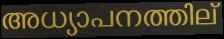
അധ്യാപനത്തില്